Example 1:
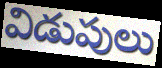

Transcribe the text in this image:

విడుపులు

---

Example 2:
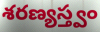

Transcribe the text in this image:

శరణ్యస్త్వం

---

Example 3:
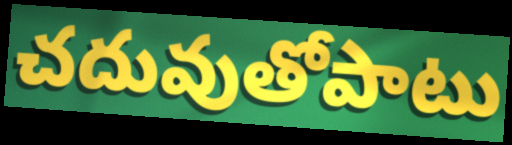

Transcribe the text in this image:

చదువుతోపాటు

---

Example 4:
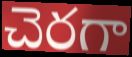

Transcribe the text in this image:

చెరగా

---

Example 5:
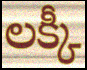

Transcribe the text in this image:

లక్కీ